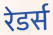
रेडर्स